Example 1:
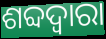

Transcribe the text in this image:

ଶବ୍ଦଦ୍ୱାରା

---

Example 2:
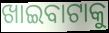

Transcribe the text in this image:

ଖାଇବାଟାକୁ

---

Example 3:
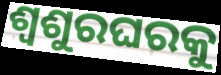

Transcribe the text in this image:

ଶ୍ୱଶୁରଘରକୁ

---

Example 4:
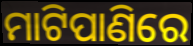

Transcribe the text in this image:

ମାଟିପାଣିରେ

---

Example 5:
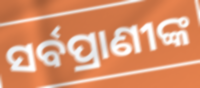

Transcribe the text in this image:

ସର୍ବପ୍ରାଣୀଙ୍କ